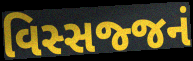
વિસ્સજ્જનં